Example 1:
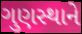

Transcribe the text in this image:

ગુણસ્થાને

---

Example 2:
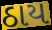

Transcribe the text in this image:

ઠાય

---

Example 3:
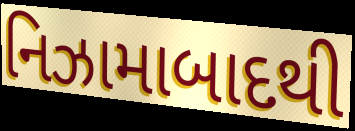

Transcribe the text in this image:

નિઝામાબાદથી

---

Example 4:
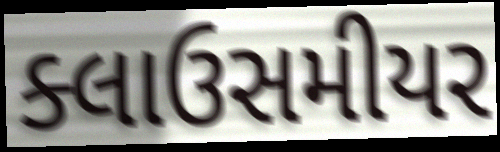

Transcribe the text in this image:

ક્લાઉસમીયર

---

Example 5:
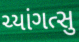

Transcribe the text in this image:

ચ્યાંગત્સુ